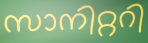
സാനിറ്ററി